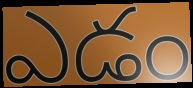
ఎడం